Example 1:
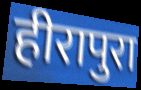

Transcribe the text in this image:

हीरापुरा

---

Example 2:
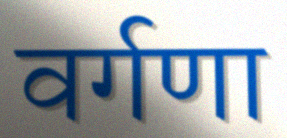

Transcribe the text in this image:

वर्गणा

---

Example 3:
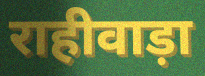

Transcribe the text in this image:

राहीवाड़ा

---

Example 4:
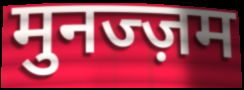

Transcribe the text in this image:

मुनज्ज़म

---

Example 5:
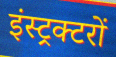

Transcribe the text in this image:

इंस्ट्रक्टरों